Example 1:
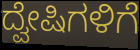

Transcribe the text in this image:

ದ್ವೇಷಿಗಳಿಗೆ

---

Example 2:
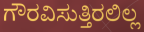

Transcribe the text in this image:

ಗೌರವಿಸುತ್ತಿರಲಿಲ್ಲ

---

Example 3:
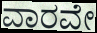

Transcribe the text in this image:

ವಾರವೇ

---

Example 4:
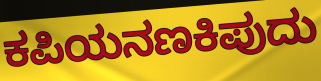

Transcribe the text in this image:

ಕಪಿಯನಣಕಿಪುದು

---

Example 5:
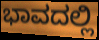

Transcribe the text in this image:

ಭಾವದಲ್ಲಿ